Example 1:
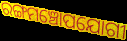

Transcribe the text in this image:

ରଙ୍ଗମଞ୍ଚୋପଯୋଗୀ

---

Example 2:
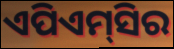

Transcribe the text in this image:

ଏପିଏମ୍‌ସିର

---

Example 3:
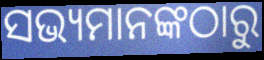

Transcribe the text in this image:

ସଭ୍ୟମାନଙ୍କଠାରୁ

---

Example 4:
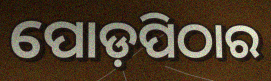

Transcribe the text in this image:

ପୋଡ଼ପିଠାର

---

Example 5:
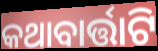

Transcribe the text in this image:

କଥାବାର୍ତ୍ତାଟି